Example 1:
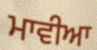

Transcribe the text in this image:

ਮਾਵੀਆ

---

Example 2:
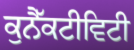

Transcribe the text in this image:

ਕੁਨੈੱਕਟੀਵਿਟੀ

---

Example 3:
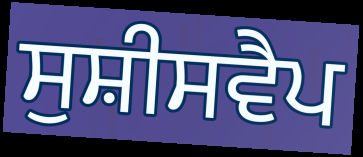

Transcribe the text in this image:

ਸੁਸ਼ੀਸਵੈਪ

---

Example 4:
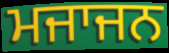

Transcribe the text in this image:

ਮਜਾਜਨ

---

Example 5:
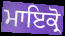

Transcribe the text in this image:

ਮਾਇਕ੍ਰੋ